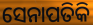
ସେନାପତିକି